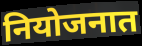
नियोजनात